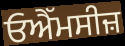
ਓਐੱਮਸੀਜ਼